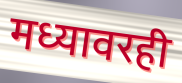
मध्यावरही